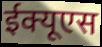
ईक्यूएस